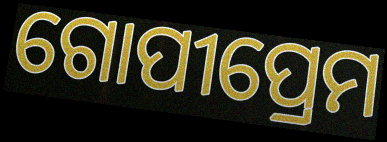
ଗୋପୀପ୍ରେମ